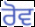
ਰੋਵ